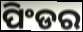
ପିଂଡର